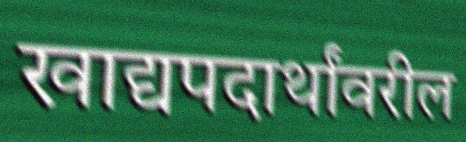
खाद्यपदार्थांवरील